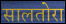
सालतोरा